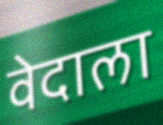
वेदाला